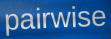
pairwise